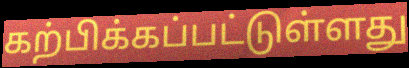
கற்பிக்கப்பட்டுள்ளது